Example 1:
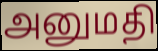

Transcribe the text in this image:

அனுமதி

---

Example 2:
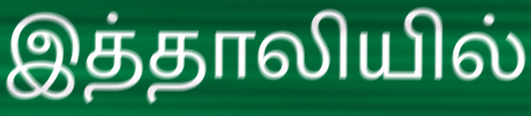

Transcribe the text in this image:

இத்தாலியில்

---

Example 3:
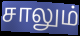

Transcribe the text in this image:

சாலும்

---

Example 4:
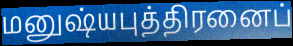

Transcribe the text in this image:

மனுஷ்யபுத்திரனைப்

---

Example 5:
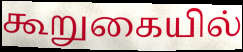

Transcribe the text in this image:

கூறுகையில்